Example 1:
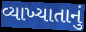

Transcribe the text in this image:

વ્યાખ્યાતાનું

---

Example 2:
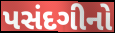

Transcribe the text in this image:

પસંદગીનો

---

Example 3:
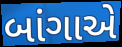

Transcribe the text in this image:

બાંગાએ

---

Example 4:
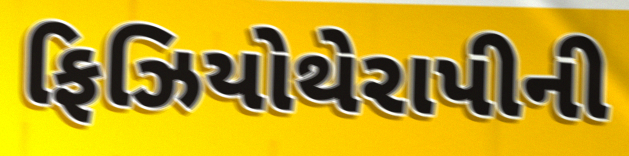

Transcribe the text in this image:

ફિઝિયોથેરાપીની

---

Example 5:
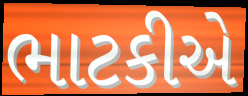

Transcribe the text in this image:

ભાટકીએ